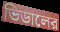
ভিডালের